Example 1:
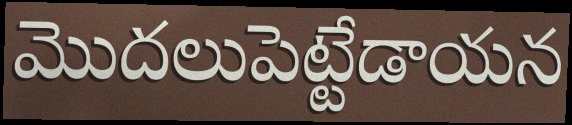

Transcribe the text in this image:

మొదలుపెట్టేడాయన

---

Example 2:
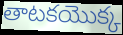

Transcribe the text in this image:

తాటకయొక్క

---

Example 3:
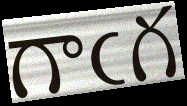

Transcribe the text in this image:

గాఁగ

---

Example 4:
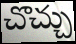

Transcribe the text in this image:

చొచ్చు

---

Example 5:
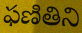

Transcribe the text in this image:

ఫణితిని